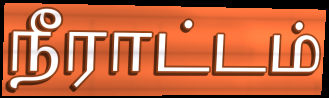
நீராட்டம்